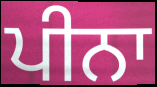
ਪੀਨਾ